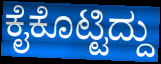
ಕೈಕೊಟ್ಟಿದ್ದು